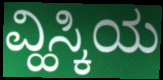
ವ್ಹಿಸ್ಕಿಯ